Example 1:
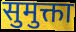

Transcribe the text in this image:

सुमुक्ता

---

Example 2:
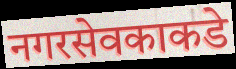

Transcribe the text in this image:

नगरसेवकाकडे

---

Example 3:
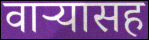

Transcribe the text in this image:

वार्‍यासह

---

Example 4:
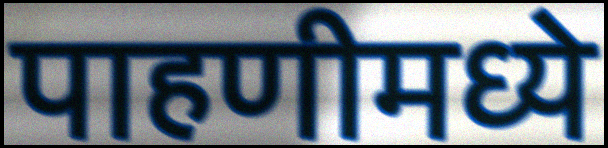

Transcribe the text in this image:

पाहणीमध्ये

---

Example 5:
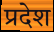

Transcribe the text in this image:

प्रदेश